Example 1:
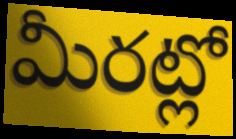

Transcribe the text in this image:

మీరట్లో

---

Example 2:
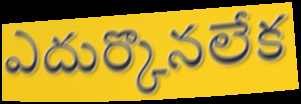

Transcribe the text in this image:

ఎదుర్కొనలేక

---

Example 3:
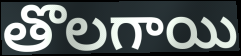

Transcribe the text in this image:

తొలగాయి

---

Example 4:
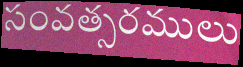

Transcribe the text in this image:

సంవత్సరములు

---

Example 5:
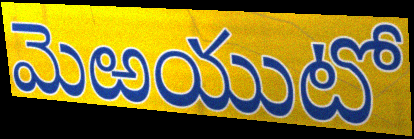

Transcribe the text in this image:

మెఱయుటో